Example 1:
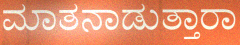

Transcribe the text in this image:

ಮಾತನಾಡುತ್ತಾರಾ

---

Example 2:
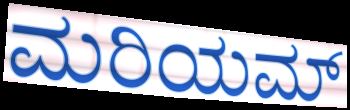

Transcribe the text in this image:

ಮರಿಯಮ್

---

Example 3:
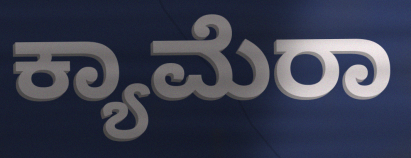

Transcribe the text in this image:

ಕ್ಯಾಮೆರಾ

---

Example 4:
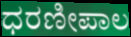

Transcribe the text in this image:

ಧರಣೀಪಾಲ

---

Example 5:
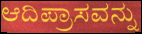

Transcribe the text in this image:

ಆದಿಪ್ರಾಸವನ್ನು